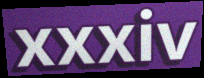
xxxiv